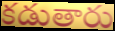
కడుతారు